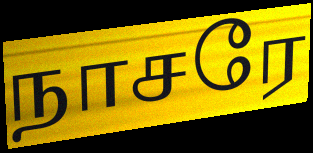
நாசரே